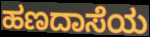
ಹಣದಾಸೆಯ